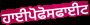
ਹਾਈਪੋਫੋਸਫਾਈਟ